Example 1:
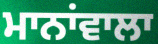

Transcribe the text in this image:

ਮਾਨਾਂਵਾਲਾ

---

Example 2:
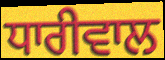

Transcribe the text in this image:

ਧਾਰੀਵਾਲ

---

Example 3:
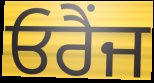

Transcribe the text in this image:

ਓਰੈਂਜ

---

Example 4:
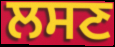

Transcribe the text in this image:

ਲਸਣ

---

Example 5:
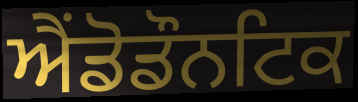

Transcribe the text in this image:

ਐਂਡੋਡੌਨਟਿਕ